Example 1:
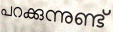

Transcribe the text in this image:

പറക്കുന്നുണ്ട്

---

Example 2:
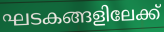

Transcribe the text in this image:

ഘടകങ്ങളിലേക്ക്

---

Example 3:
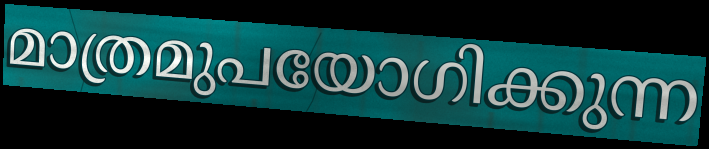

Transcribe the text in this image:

മാത്രമുപയോഗിക്കുന്ന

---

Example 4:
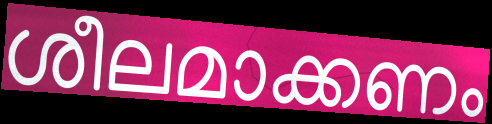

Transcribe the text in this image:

ശീലമാക്കണം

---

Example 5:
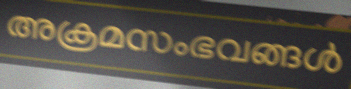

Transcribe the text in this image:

അക്രമസംഭവങ്ങൾ